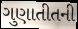
ગુણાતીતની